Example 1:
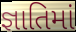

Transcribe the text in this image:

જ્ઞાતિમાં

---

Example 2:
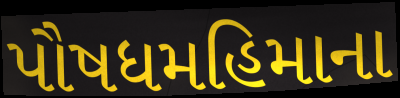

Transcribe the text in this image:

પૌષધમહિમાના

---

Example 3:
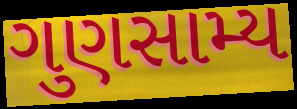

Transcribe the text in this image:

ગુણસામ્ય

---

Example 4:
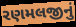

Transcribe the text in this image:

રણમલજીનું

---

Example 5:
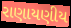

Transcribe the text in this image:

રાણાયણીય